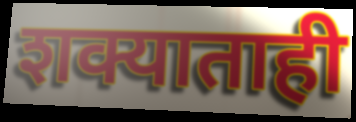
शक्याताही